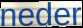
neder